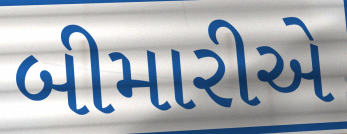
બીમારીએ